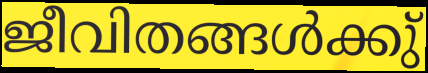
ജീവിതങ്ങൾക്കു്